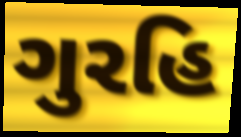
ગુરહિ